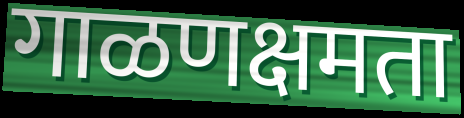
गाळणक्षमता